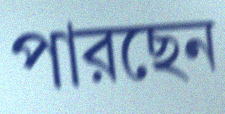
পারছেন